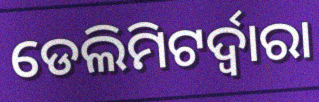
ଡେଲିମିଟର୍ଦ୍ୱାରା